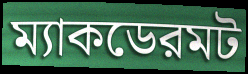
ম্যাকডেরমট